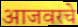
आजवरचे